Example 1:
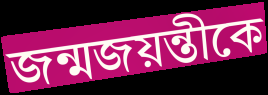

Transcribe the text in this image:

জন্মজয়ন্তীকে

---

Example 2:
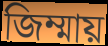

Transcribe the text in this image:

জিম্মায়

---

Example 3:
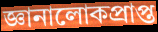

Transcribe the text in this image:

জ্ঞানালোকপ্রাপ্ত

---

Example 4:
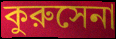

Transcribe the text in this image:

কুরুসেনা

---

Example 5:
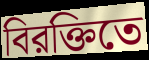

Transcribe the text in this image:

বিরক্তিতে